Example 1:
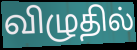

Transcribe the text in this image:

விழுதில்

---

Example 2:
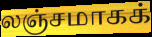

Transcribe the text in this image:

லஞ்சமாகக்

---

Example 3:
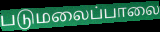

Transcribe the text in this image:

படுமலைப்பாலை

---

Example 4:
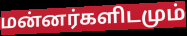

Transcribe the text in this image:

மன்னர்களிடமும்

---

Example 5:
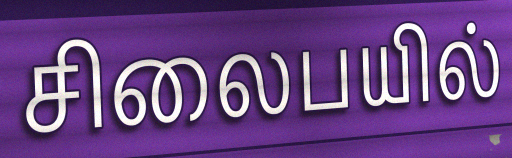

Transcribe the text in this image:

சிலைபயில்